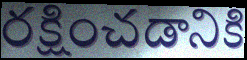
రక్షించడానికి